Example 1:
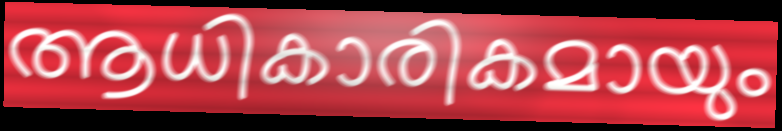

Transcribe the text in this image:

ആധികാരികമായും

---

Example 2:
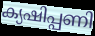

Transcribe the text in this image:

ക്യഷിപ്പണി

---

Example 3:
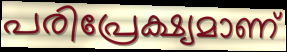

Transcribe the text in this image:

പരിപ്രേക്ഷ്യമാണ്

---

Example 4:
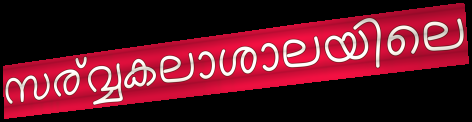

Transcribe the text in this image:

സര്വ്വകലാശാലയിലെ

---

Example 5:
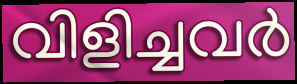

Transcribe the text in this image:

വിളിച്ചവർ